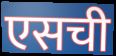
एसची